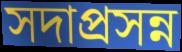
সদাপ্রসন্ন